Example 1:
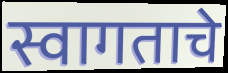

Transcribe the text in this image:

स्वागताचे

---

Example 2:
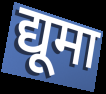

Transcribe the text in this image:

द्यूमा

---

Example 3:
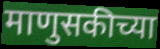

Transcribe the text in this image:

माणुसकीच्या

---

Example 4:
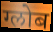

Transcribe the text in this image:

ग्लोब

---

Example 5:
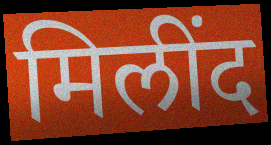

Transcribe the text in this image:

मिलींद